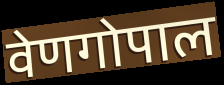
वेणगोपाल